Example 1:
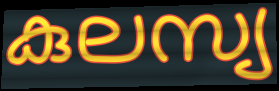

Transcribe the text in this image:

കുലസ്യ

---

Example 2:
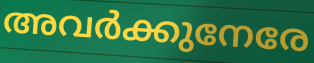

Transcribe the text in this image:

അവർക്കുനേരേ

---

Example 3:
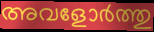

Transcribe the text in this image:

അവളോർത്തു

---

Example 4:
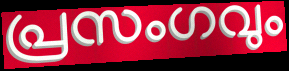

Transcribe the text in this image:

പ്രസംഗവും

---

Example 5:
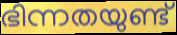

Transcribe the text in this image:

ഭിന്നതയുണ്ട്